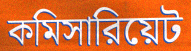
কমিসারিয়েট